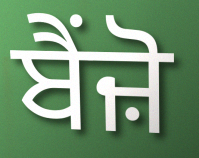
ਬੈਂਜ਼ੋ